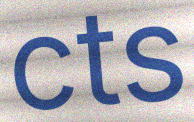
cts